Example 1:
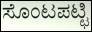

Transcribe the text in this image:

ಸೊಂಟಪಟ್ಟಿ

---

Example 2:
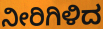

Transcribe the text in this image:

ನೀರಿಗಿಳಿದ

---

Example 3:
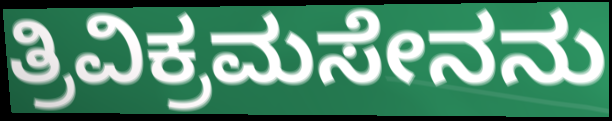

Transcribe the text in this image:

ತ್ರಿವಿಕ್ರಮಸೇನನು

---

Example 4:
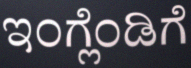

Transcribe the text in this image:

ಇಂಗ್ಲೆಂಡಿಗೆ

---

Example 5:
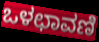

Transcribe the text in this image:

ಒಳಛಾವಣಿ